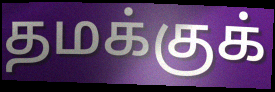
தமக்குக்